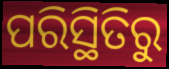
ପରିସ୍ଥିତିରୁ